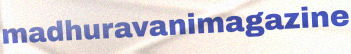
madhuravanimagazine